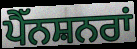
ਪੈੱਨਸ਼ਨਰਾਂ